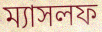
ম্যাসলফ